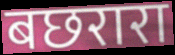
बछरारा